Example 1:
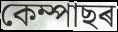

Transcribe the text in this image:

কেম্পাছৰ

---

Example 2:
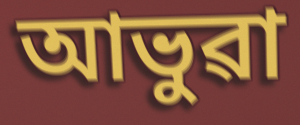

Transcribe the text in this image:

আভুৱা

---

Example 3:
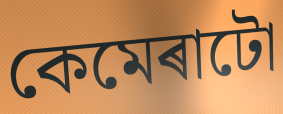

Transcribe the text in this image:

কেমেৰাটো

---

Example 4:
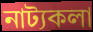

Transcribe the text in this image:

নাট্যকলা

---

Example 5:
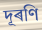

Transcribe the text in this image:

দূৰণি